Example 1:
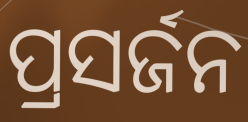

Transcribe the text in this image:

ପ୍ରସର୍ଜନ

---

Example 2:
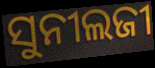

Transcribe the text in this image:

ସୁନୀଲଜୀ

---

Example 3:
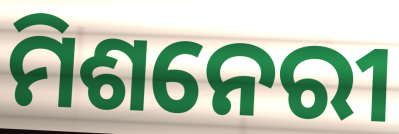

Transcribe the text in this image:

ମିଶନେରୀ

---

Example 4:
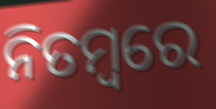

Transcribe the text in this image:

ନିତମ୍ବରେ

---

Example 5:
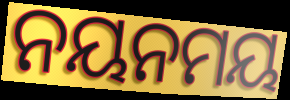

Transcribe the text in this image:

ନୟନମୟ